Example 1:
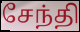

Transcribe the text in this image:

சேந்தி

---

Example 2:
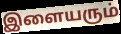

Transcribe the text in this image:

இளையரும்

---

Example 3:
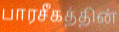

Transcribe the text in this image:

பாரசீகத்தின்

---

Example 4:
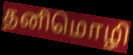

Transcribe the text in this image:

தனிமொழி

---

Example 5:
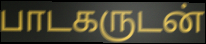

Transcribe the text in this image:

பாடகருடன்